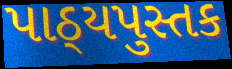
પાઠ્યપુસ્તક